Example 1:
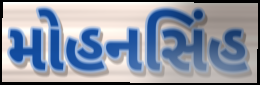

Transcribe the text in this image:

મોહનસિંહ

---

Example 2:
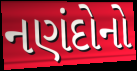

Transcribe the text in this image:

નણંદોનો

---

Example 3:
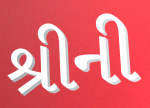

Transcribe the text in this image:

શ્રીની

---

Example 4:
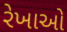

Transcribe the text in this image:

રેખાઓ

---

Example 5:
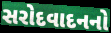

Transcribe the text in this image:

સરોદવાદનનો